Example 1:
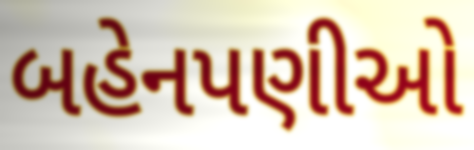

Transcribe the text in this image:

બહેનપણીઓ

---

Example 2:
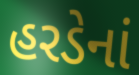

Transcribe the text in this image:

હરડેનાં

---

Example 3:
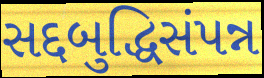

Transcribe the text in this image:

સદ્દબુદ્ધિસંપન્ન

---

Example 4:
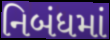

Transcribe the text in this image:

નિબંધમાં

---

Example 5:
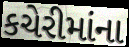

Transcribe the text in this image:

કચેરીમાંના